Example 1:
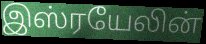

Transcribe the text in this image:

இஸ்ரயேலின்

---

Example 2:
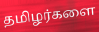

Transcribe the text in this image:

தமிழர்களை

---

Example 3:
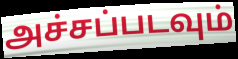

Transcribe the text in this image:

அச்சப்படவும்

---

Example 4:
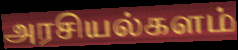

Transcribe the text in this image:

அரசியல்களம்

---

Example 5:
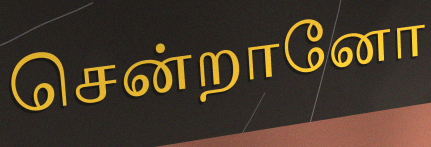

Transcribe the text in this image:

சென்றானோ